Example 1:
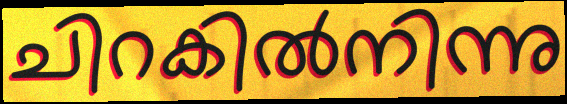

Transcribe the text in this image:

ചിറകിൽനിന്നു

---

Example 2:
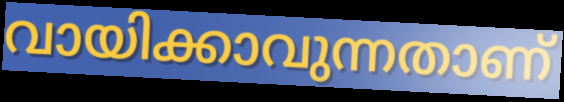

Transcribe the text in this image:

വായിക്കാവുന്നതാണ്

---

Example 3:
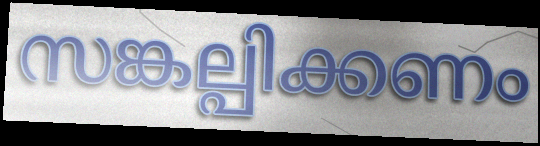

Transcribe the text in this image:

സങ്കല്പിക്കണം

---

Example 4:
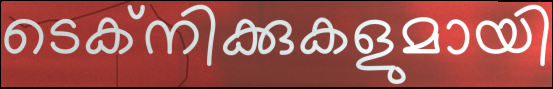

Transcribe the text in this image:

ടെക്നിക്കുകളുമായി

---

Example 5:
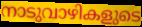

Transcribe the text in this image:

നാടുവാഴികളുടെ